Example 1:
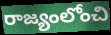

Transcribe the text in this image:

రాజ్యంలోంచి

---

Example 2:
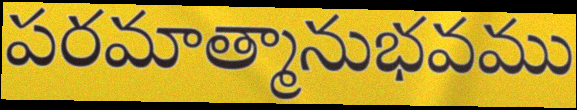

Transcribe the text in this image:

పరమాత్మానుభవము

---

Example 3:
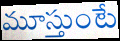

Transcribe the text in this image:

మూస్తుంటే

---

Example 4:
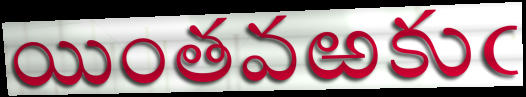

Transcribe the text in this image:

యింతవఱకుఁ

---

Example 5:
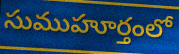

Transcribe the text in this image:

సుముహూర్తంలో